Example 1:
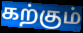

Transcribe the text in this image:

கற்கும்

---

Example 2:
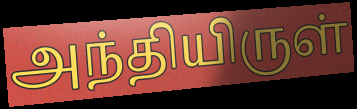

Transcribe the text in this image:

அந்தியிருள்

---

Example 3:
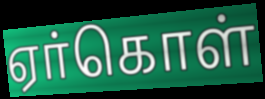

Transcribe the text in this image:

ஏர்கொள்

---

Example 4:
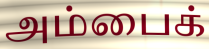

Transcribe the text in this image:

அம்பைக்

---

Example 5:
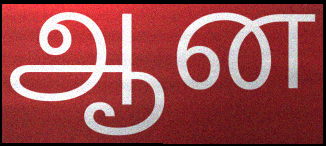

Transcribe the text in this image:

ஆன